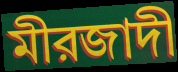
মীরজাদী